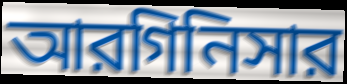
আরগিনিসার